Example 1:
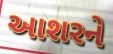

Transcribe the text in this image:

આશરને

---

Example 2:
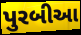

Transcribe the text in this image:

પુરબીઆ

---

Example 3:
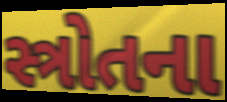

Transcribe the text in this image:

સ્ત્રોતના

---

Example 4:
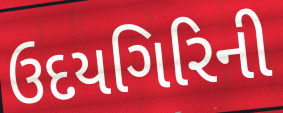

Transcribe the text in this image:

ઉદયગિરિની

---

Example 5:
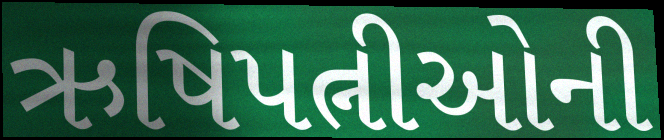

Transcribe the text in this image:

ઋષિપત્નીઓની